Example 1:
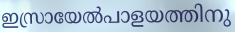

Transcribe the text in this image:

ഇസ്രായേൽപാളയത്തിനു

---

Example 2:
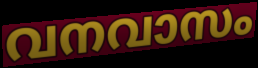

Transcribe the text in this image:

വനവാസം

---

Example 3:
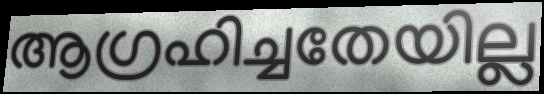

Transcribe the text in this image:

ആഗ്രഹിച്ചതേയില്ല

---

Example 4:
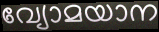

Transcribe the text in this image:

വ്യോമയാന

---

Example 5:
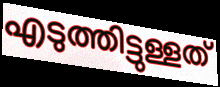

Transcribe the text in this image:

എടുത്തിട്ടുള്ളത്